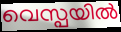
വെസ്പയിൽ